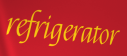
refrigerator